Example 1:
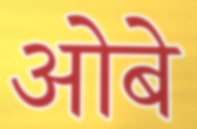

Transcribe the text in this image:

ओबे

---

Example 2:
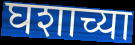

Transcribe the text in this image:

घशाच्या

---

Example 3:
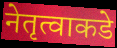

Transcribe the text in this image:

नेतृत्वाकडे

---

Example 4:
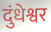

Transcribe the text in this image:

दुंधेश्वर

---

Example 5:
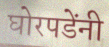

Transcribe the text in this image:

घोरपडेंनी